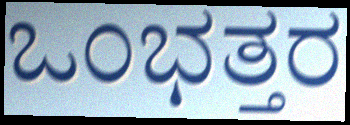
ಒಂಭತ್ತರ